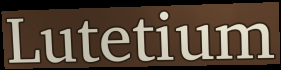
Lutetium